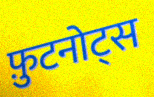
फ़ुटनोट्स